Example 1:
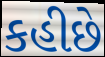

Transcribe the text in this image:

કહીછે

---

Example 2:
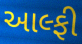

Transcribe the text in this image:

આલ્ફી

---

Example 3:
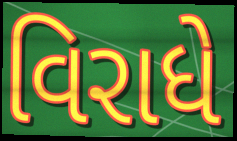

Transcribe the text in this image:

વિરાધે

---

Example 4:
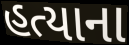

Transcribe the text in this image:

હત્યાના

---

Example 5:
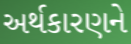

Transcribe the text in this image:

અર્થકારણને